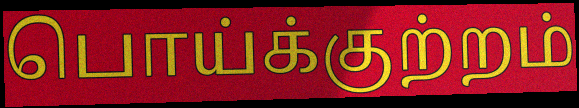
பொய்க்குற்றம்